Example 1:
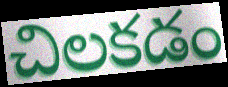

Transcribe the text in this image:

చిలకడం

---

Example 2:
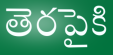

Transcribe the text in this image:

తెరపైకి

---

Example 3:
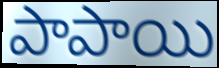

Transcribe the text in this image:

పాపాయి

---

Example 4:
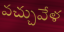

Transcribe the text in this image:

వచ్చువేళ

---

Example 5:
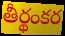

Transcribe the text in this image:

తీర్థంకర